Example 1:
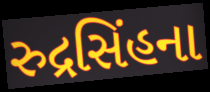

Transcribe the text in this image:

રુદ્રસિંહના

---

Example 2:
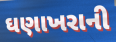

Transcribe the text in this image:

ઘણાખરાની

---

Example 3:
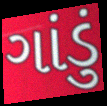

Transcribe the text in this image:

ગાંડું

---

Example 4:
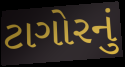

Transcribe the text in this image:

ટાગોરનું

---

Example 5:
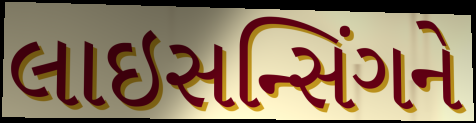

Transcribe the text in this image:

લાઇસન્સિંગને